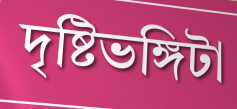
দৃষ্টিভঙ্গিটা